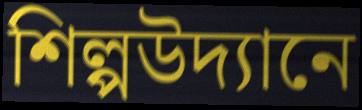
শিল্পউদ্যানে